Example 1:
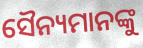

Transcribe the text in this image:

ସୈନ୍ୟମାନଙ୍କୁ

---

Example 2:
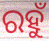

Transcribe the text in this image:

ରହୁଁ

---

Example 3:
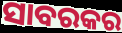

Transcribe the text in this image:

ସାବରକର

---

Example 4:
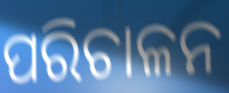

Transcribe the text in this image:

ପରିଚାଳନ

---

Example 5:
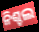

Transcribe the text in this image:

ନିଶ୍ଚଲ